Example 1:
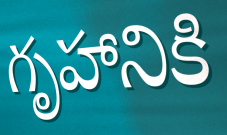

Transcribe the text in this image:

గృహానికి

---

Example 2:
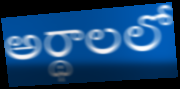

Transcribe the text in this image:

అర్థాలలో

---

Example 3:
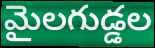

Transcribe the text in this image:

మైలగుడ్డల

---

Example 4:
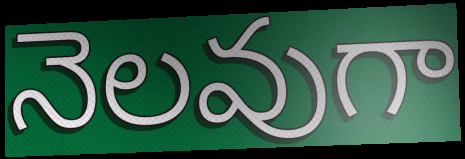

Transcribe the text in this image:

నెలవుగా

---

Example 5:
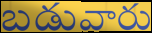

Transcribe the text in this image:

బడువారు